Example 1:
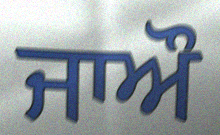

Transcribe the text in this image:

ਜਾਔ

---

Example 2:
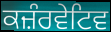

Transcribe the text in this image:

ਕਜ਼ੰਰਵੇਟਿਵ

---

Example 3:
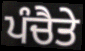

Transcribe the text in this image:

ਪੰਚੈਤੇ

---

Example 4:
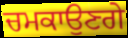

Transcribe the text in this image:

ਚਮਕਾਉਣਗੇ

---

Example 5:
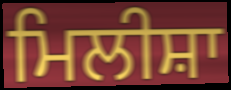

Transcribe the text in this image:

ਮਿਲੀਸ਼ਾ